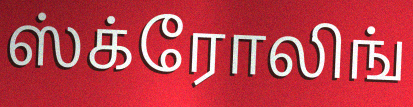
ஸ்க்ரோலிங்